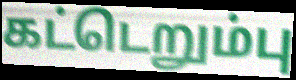
கட்டெறும்பு